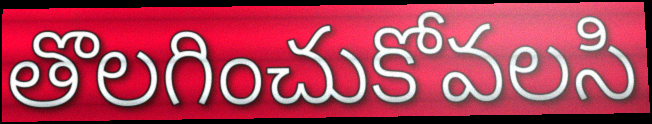
తొలగించుకోవలసి